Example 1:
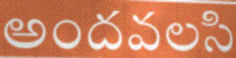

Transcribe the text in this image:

అందవలసి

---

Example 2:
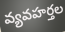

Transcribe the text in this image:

వ్యవహర్తల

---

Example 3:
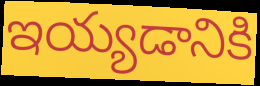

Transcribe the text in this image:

ఇయ్యడానికి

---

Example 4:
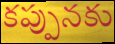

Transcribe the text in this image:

కప్పునకు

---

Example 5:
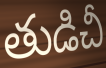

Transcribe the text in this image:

తుడిచీ